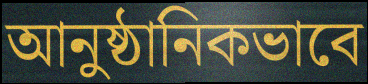
আনুষ্ঠানিকভাবে